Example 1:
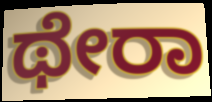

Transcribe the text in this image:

ಥೇರಾ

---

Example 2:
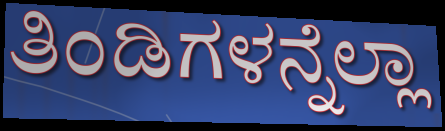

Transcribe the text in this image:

ತಿಂಡಿಗಳನ್ನೆಲ್ಲಾ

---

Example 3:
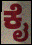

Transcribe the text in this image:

ಕೈ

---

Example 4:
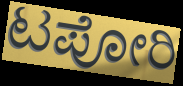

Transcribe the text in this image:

ಟಪೋರಿ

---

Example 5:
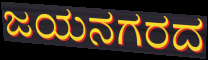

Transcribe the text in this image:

ಜಯನಗರದ